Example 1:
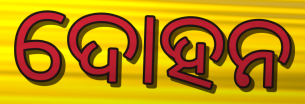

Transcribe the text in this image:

ଦୋହନ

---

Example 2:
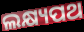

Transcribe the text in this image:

ଲକ୍ଷ୍ୟପଥ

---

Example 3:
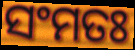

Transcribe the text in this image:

ସଂମତଃ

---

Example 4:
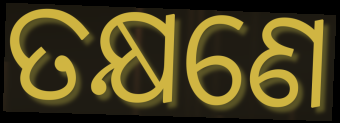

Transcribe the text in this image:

ତକ୍ଷଣେ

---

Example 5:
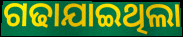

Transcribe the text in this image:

ଗଢାଯାଇଥିଲା